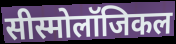
सीस्मोलॉजिकल